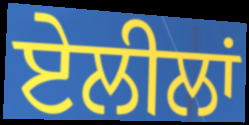
ਏਲੀਲਾਂ